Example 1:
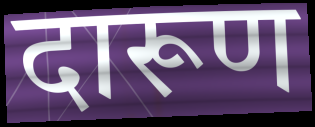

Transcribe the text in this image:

दारूण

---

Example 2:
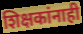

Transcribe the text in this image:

शिक्षकांनाही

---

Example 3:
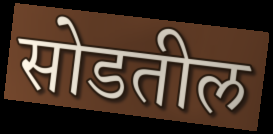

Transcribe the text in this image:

सोडतील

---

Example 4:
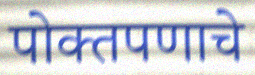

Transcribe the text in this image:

पोक्तपणाचे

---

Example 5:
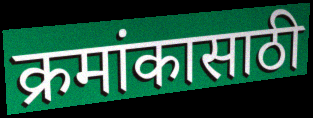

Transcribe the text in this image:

क्रमांकासाठी